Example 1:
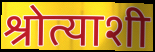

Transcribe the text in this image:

श्रोत्याशी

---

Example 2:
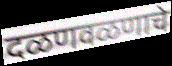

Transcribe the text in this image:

दळणवळणाचे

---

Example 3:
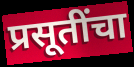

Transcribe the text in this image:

प्रसूतींचा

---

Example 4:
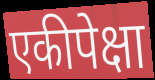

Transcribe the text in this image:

एकीपेक्षा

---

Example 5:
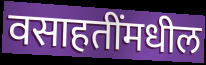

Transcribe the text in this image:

वसाहतींमधील